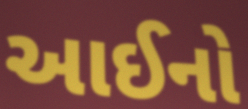
આઈનો